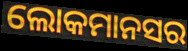
ଲୋକମାନସର